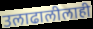
उलाढालीलाही